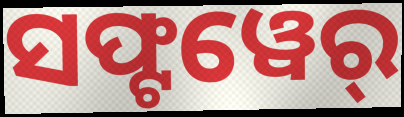
ସଫ୍ଟୱେର୍